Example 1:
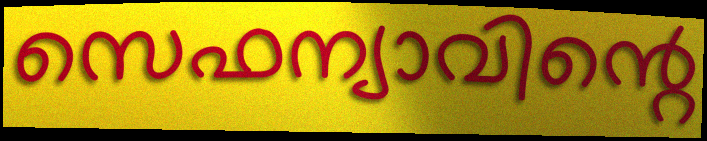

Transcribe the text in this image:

സെഫന്യാവിന്റെ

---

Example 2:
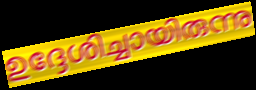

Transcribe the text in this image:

ഉദ്ദേശിച്ചായിരുന്നു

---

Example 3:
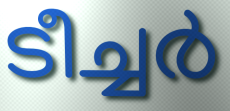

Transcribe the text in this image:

ടീച്ചർ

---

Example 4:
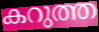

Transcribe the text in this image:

കറുത്ത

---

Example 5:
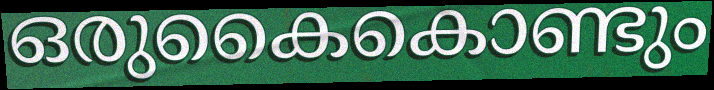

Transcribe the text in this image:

ഒരുകൈകൊണ്ടും